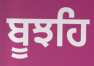
ਬੂਝਹਿ